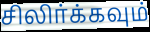
சிலிர்க்கவும்